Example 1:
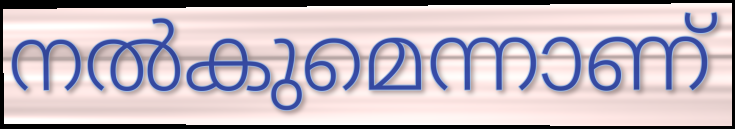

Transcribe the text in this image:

നൽകുമെന്നാണ്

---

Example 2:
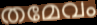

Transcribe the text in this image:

തമേവം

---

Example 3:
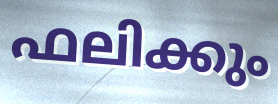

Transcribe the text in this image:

ഫലിക്കും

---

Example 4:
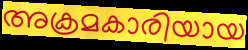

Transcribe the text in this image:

അക്രമകാരിയായ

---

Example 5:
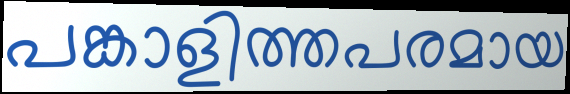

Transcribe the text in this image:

പങ്കാളിത്തപരമായ